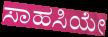
ಸಾಹಸಿಯೇ